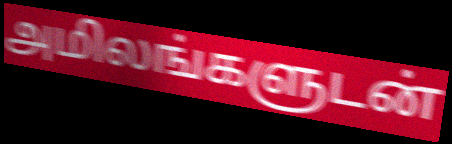
அமிலங்களுடன்